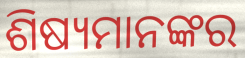
ଶିଷ୍ୟମାନଙ୍କର